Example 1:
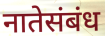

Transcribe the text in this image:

नातेसंबंध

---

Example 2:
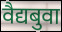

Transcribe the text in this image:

वैद्यबुवा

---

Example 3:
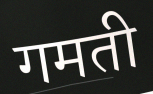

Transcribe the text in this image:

गमती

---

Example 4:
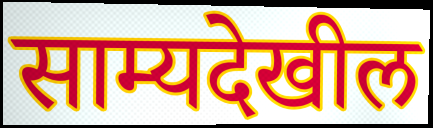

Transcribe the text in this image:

साम्यदेखील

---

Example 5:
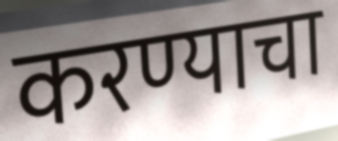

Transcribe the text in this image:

करण्याचा